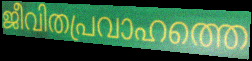
ജീവിതപ്രവാഹത്തെ